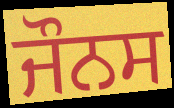
ਜੌਨਸ